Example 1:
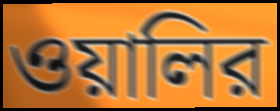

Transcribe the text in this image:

ওয়ালির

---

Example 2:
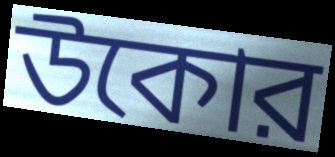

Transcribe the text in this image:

উকোর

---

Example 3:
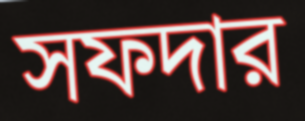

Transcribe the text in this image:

সফদার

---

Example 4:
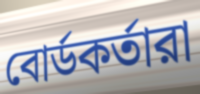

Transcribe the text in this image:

বোর্ডকর্তারা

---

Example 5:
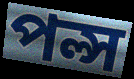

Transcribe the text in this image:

পল্স